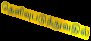
தெளிவுபடுத்துவதில்